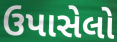
ઉપાસેલો